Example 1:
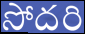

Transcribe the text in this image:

సోదరి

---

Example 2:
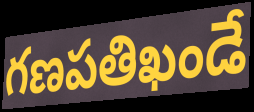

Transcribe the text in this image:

గణపతిఖండే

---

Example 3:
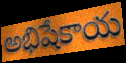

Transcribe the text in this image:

అభిషేకాయ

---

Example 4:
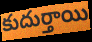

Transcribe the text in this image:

కుదుర్తాయి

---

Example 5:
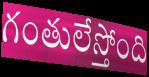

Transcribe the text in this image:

గంతులేస్తోంది